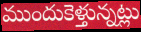
ముందుకెళ్తున్నట్లు